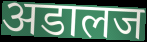
अडालज